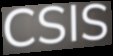
CSIS